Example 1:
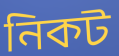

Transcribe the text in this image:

নিকট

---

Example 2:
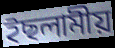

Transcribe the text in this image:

ইছলামীয়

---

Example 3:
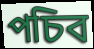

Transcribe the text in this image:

পচিব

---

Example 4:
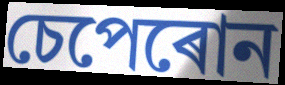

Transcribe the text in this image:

চেপেৰোন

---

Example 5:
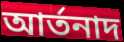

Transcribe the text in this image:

আৰ্তনাদ